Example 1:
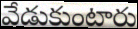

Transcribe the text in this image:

వేడుకుంటారు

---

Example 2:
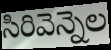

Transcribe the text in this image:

సిరివెన్నెల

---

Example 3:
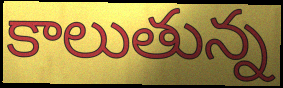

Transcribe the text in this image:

కాలుతున్న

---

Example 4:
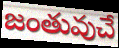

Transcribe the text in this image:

జంతువుచే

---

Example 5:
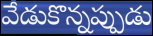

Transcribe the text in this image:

వేడుకొన్నప్పుడు